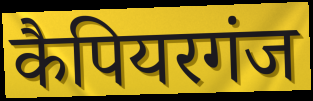
कैपियरगंज